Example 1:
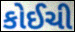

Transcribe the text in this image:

કોઈચી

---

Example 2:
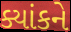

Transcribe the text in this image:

ક્યાંકને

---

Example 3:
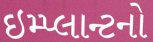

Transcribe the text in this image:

ઇમ્પ્લાન્ટનો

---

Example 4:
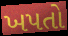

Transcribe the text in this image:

ખપતો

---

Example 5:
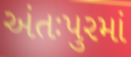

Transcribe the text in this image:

અંતઃપુરમાં